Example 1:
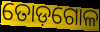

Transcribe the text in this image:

ତୋଡ଼ଗୋଳ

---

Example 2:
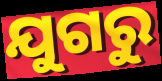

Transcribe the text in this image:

ଯୁଗରୁ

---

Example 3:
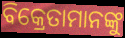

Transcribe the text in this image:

ବିକ୍ରେତାମାନଙ୍କୁ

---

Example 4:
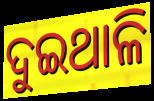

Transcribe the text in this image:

ଦୁଇଥାଳି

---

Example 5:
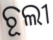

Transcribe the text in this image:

ଚୂଲୀ